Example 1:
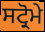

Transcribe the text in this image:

ਸਟ੍ਰੋਮੇ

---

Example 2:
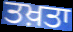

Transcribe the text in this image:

ਤਖ਼ਤਾ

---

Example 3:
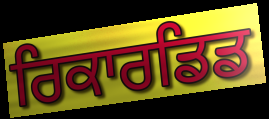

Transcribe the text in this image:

ਰਿਕਾਰਡਿਡ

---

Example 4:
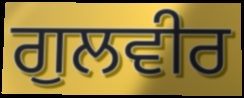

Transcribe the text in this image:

ਗੁਲਵੀਰ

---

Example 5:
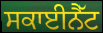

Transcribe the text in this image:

ਸਕਾਈਨੈੱਟ